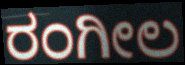
ರಂಗೀಲ